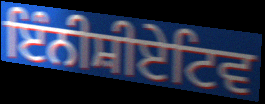
ਇੰਨੀਸ਼ੀਏਟਿਵ